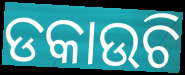
ଡକାଉଚି